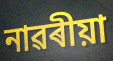
নাৱৰীয়া